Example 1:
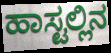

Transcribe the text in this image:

ಹಾಸ್ಟಲ್ಲಿನ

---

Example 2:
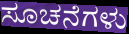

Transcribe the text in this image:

ಸೂಚನೆಗಳು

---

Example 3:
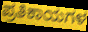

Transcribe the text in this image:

ಪ್ರತಿಕಾಯಗಳ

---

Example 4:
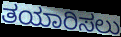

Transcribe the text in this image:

ತಯಾರಿಸಲು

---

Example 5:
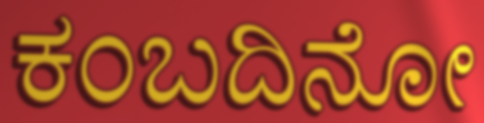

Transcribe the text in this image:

ಕಂಬದಿನೋ